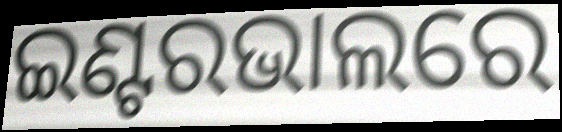
ଇଣ୍ଟରଭାଲରେ